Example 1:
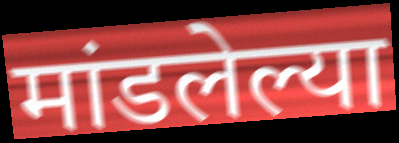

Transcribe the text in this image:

मांडलेल्या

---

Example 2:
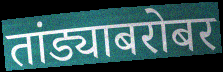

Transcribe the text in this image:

तांड्याबरोबर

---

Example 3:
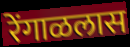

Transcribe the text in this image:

रेंगाळलास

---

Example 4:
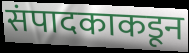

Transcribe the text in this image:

संपादकाकडून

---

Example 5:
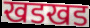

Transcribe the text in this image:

खडखड